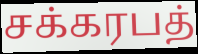
சக்கரபத்